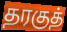
தரகுத்